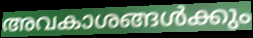
അവകാശങ്ങൾക്കും